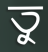
তু